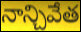
నాన్చివేత